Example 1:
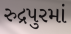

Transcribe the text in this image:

રુદ્રપુરમાં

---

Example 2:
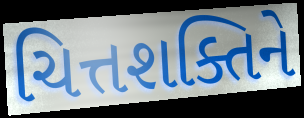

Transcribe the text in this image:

ચિત્તશક્તિને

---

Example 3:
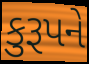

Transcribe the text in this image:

કુરૂપને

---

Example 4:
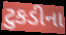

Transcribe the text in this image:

ટુકડીના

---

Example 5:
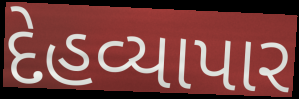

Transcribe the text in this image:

દેહવ્યાપાર